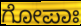
ಗೋಪಾಃ